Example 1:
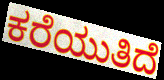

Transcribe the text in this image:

ಕರೆಯುತಿದೆ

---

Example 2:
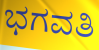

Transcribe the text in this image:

ಭಗವತಿ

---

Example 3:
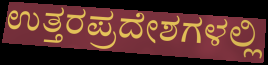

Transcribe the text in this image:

ಉತ್ತರಪ್ರದೇಶಗಳಲ್ಲಿ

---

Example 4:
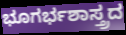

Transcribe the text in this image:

ಭೂಗರ್ಭಶಾಸ್ತ್ರದ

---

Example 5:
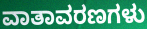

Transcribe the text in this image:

ವಾತಾವರಣಗಳು